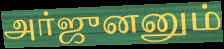
அர்ஜுனனும்